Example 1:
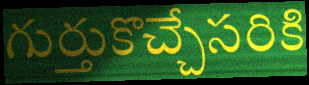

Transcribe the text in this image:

గుర్తుకొచ్చేసరికి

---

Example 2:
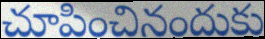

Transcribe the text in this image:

చూపించినందుకు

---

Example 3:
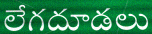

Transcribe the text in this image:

లేగదూడలు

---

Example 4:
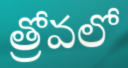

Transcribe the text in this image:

త్రోవలో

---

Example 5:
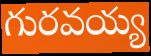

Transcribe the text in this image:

గురవయ్య